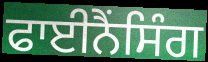
ਫਾਈਨੈਂਸਿੰਗ